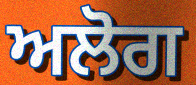
ਅਲੋਗ